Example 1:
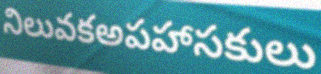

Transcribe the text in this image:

నిలువకఅపహాసకులు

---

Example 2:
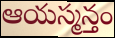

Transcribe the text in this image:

ఆయస్మన్తం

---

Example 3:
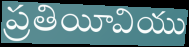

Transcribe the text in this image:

ప్రతియీవియు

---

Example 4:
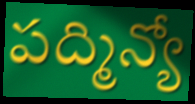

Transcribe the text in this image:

పద్మిన్యో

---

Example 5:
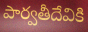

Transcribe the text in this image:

పార్వతీదేవికి